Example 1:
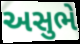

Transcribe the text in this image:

અસુભે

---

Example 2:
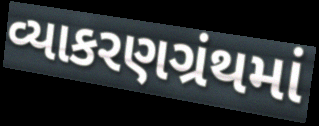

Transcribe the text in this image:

વ્યાકરણગ્રંથમાં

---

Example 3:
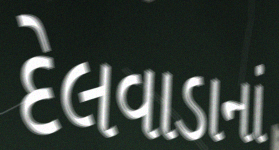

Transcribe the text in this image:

દેલવાડાનાં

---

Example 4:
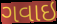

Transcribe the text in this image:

ગવાઇ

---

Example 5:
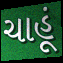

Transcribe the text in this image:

ચાહૂં